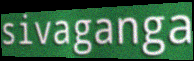
sivaganga